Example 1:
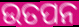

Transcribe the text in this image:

ଉତପନ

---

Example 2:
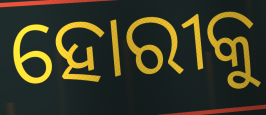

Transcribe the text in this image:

ହୋରୀକୁ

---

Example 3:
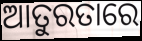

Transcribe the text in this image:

ଆତୁରତାରେ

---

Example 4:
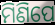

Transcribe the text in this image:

ମିଣିପେ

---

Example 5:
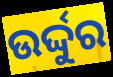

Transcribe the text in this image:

ଉର୍ଦ୍ଦୁର